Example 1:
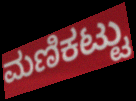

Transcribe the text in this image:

ಮಣಿಕಟ್ಟು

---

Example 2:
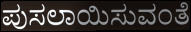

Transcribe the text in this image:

ಪುಸಲಾಯಿಸುವಂತೆ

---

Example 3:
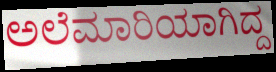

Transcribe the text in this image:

ಅಲೆಮಾರಿಯಾಗಿದ್ದ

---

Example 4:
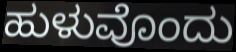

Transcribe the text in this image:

ಹುಳುವೊಂದು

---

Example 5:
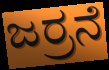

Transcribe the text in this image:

ಜರ್ರನೆ